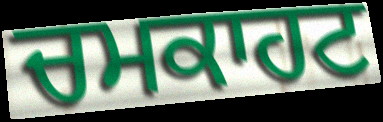
ਚਮਕਾਹਟ